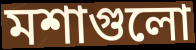
মশাগুলো